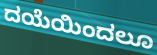
ದಯೆಯಿಂದಲೂ